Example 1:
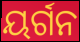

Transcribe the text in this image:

ୟର୍ଗନ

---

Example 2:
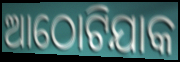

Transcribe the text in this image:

ଆଠୋଟିଯାକ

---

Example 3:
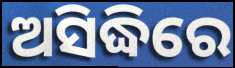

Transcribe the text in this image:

ଅସିଦ୍ଧିରେ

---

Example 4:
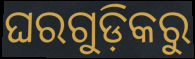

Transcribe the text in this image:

ଘରଗୁଡ଼ିକରୁ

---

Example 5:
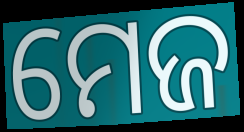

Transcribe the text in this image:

ମେଜ